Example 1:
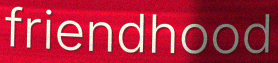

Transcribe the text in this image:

friendhood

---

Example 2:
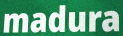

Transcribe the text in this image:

madura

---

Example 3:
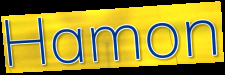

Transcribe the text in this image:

Hamon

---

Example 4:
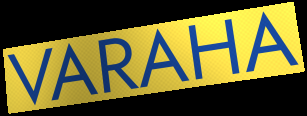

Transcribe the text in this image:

VARAHA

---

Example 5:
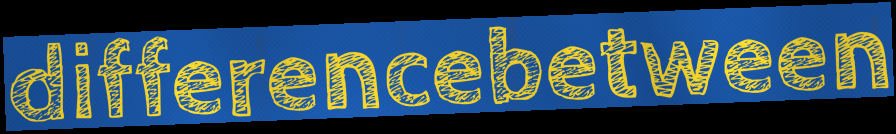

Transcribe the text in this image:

differencebetween